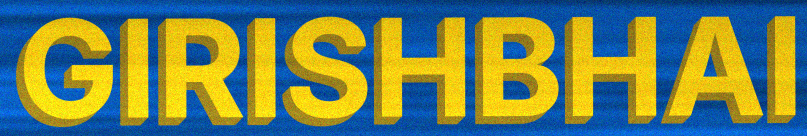
GIRISHBHAI